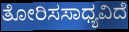
ತೋರಿಸಸಾಧ್ಯವಿದೆ